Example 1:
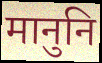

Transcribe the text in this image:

मानुनि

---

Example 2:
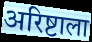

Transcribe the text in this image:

अरिष्टाला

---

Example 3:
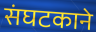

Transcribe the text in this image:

संघटकाने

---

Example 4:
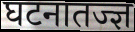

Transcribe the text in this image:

घटनातज्ज्ञ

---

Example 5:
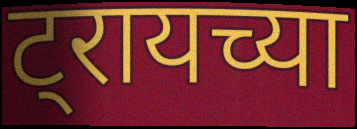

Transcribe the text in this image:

ट्रायच्या